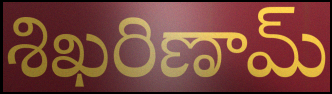
శిఖరిణామ్